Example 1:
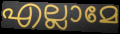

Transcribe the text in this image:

എല്ലാമേ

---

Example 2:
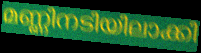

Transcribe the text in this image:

മണ്ണിനടിയിലാക്കി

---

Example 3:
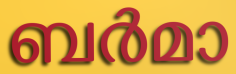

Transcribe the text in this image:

ബർമാ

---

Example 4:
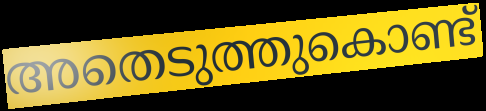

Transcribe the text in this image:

അതെടുത്തുകൊണ്ട്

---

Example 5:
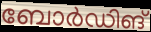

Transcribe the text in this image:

ബോർഡിങ്